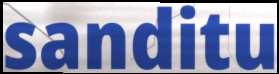
sanditu